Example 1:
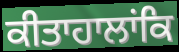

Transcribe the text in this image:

ਕੀਤਾਹਾਲਾਂਕਿ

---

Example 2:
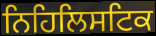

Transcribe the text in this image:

ਨਿਹਿਲਿਸਟਿਕ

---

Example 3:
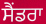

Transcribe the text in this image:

ਸੈਂਡਰਾ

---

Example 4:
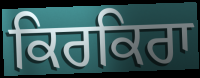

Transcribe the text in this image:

ਕਿਰਕਿਰਾ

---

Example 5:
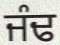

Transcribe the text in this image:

ਜੰਢ